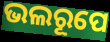
ଭଲରୂପେ